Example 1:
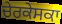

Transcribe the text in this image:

ਚੇਰਕੇਸਕਾ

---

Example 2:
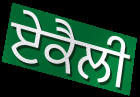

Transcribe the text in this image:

ਏਕੈਲੀ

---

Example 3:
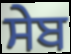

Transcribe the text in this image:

ਸੇਬ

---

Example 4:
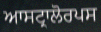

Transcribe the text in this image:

ਆਸਟ੍ਰਾਲੋਰਪਸ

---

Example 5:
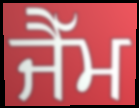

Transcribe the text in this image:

ਜੈੱਮ